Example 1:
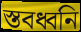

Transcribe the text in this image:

স্তবধ্বনি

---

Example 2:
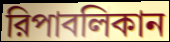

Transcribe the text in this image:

রিপাবলিকান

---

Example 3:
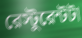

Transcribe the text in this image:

রেস্টুরেন্টটা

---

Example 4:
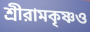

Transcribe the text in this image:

শ্রীরামকৃষ্ণও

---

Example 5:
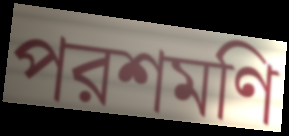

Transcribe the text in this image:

পরশমণি